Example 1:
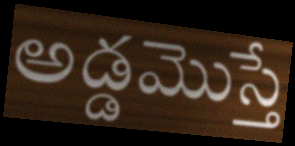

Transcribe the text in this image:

అడ్డమొస్తే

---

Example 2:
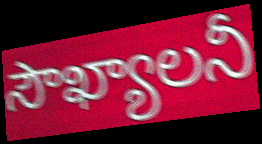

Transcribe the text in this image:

సౌఖ్యాలనీ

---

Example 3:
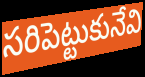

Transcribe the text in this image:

సరిపెట్టుకునేవి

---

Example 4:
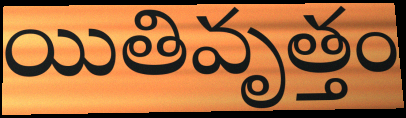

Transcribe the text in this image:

యితివృత్తం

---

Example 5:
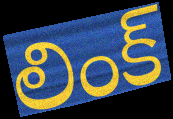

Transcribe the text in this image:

లింక్